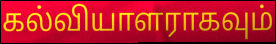
கல்வியாளராகவும்